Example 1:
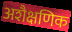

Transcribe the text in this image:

अशैक्षणिक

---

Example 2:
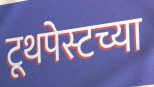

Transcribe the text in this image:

टूथपेस्टच्या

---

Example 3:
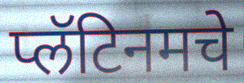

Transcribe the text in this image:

प्लॅटिनमचे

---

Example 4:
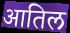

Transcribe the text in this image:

आतिल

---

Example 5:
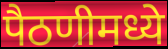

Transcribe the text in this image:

पैठणीमध्ये